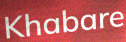
Khabare